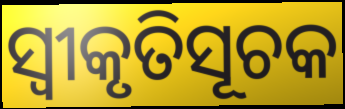
ସ୍ଵୀକୃତିସୂଚକ